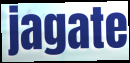
jagate